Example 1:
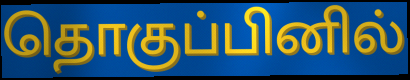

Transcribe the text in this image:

தொகுப்பினில்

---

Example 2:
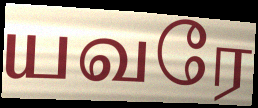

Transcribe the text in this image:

யவரே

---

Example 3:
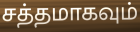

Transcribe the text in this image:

சத்தமாகவும்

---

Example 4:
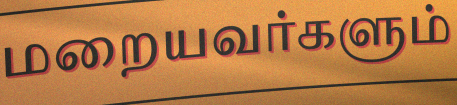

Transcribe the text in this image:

மறையவர்களும்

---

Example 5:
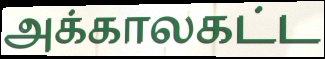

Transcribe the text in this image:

அக்காலகட்ட